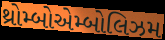
થ્રોમ્બોએમ્બોલિઝમ